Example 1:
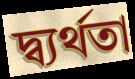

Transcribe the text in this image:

দ্ব্যর্থতা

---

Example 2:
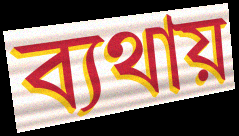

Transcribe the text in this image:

ব্যথায়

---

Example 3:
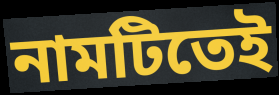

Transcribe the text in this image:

নামটিতেই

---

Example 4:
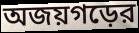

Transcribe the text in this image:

অজয়গড়ের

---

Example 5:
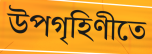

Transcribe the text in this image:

উপগৃহিণীতে